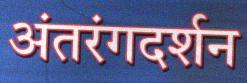
अंतरंगदर्शन